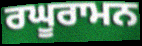
ਰਘੂਰਾਮਨ